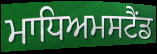
ਮਾਧਿਅਮਸਟੈਂਡ